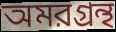
অমরগ্রন্থ